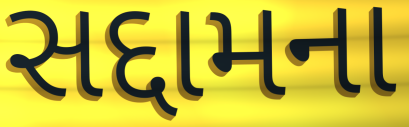
સદ્દામના